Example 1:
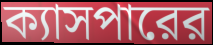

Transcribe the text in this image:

ক্যাসপারের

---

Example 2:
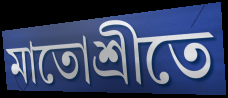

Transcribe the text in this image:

মাতোশ্রীতে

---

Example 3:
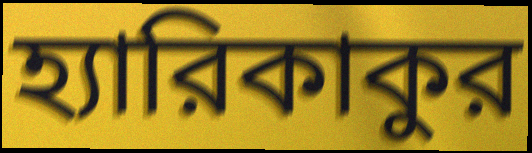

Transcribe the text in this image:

হ্যারিকাকুর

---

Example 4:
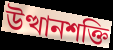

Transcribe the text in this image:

উত্থানশক্তি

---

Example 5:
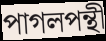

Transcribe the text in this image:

পাগলপন্থী